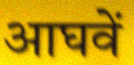
आघवें